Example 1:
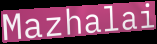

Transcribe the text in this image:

Mazhalai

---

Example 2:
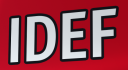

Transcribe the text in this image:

IDEF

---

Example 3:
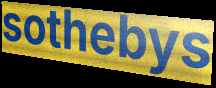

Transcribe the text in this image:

sothebys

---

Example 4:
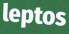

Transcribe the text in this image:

leptos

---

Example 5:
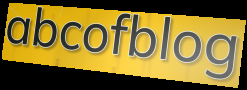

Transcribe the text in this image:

abcofblog